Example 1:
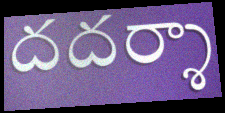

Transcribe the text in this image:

దదర్శా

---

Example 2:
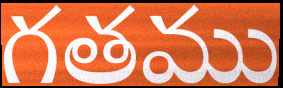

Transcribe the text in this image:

గతము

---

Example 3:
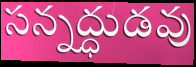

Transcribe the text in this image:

సన్నద్ధుడవు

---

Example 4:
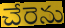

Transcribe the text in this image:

చేరెను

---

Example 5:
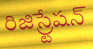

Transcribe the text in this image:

రిజిస్ర్టేషన్